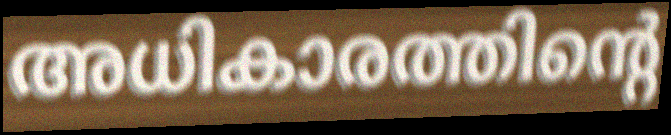
അധികാരത്തിന്റെ